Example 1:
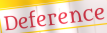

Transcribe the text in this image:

Deference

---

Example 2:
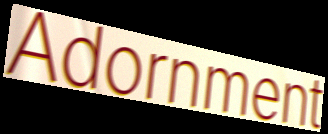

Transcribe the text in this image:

Adornment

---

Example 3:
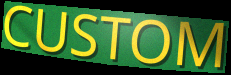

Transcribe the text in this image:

CUSTOM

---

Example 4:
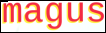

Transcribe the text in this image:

magus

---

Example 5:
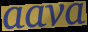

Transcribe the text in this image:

aava